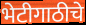
भेटीगाठीचे